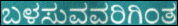
ಬಳಸುವವರಿಗಿಂತ